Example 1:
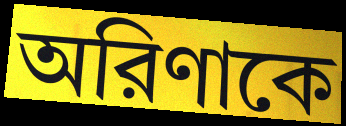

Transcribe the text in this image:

অরিণাকে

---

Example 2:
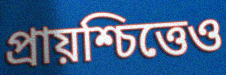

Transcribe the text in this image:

প্রায়শ্চিত্তেও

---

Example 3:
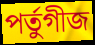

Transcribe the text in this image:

পর্তুগীজ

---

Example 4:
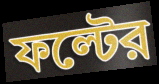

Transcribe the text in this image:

ফল্টের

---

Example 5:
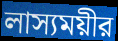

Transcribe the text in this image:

লাস্যময়ীর